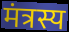
मंत्रस्य